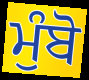
ਮੁੰਬੋ